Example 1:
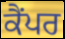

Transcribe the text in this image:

ਕੈਂਪਰ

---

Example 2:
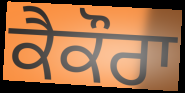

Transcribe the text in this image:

ਕੈਕੌਰਾ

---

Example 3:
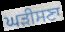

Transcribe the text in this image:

ਘੜੀਸਣਾ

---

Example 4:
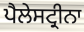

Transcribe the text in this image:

ਪੈਲੇਸਟ੍ਰੀਨਾ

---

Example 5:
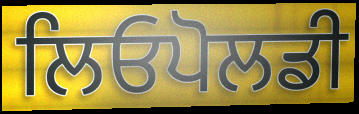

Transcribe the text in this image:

ਲਿਓਪੋਲਡੀ